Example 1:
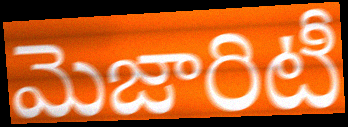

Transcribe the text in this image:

మెజారిటీ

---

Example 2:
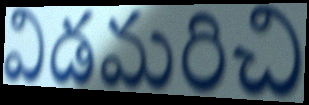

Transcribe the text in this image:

విడమరిచి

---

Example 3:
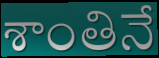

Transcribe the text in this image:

శాంతినే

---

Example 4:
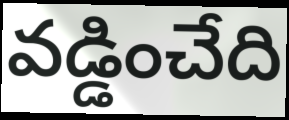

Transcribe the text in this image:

వడ్డించేది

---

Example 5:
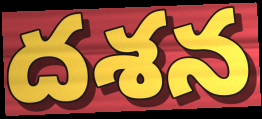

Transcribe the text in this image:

దశన